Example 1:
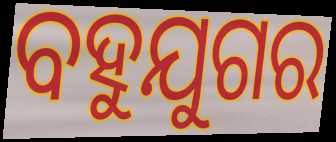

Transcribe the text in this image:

ବହୁଯୁଗର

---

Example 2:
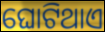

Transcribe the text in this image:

ଘୋଟିଥାଏ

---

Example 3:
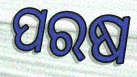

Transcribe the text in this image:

ପରଷ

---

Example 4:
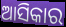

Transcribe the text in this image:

ଆସିକାର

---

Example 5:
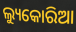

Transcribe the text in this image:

ଲ୍ୟୁକୋରିଆ